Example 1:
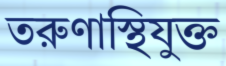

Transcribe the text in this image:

তরুণাস্থিযুক্ত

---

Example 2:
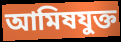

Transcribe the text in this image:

আমিষযুক্ত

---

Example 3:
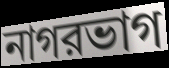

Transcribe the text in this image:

নাগরভাগ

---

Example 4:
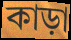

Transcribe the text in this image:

কাড়া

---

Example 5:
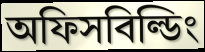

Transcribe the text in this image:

অফিসবিল্ডিং